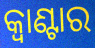
କ୍ୱାଣ୍ଟାର